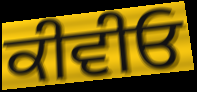
ਕੀਵੀਓ